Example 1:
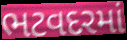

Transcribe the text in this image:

ભટવદરમાં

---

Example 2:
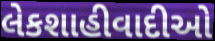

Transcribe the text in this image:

લેકશાહીવાદીઓ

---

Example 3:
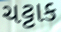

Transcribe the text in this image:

ચટ્ટાક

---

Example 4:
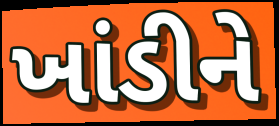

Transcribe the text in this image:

ખાંડીને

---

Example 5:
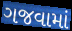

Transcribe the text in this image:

ગજવામાં